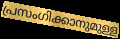
പ്രസംഗിക്കാനുമുള്ള